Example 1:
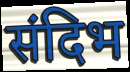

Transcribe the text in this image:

संदिभ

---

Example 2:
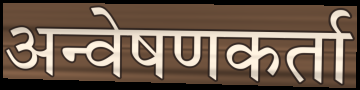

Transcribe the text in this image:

अन्वेषणकर्ता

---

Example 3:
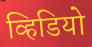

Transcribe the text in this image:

व्हिडियो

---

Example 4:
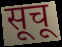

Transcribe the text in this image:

सूचू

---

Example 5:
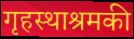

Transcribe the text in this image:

गृहस्थाश्रमकी